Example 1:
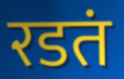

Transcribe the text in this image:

रडतं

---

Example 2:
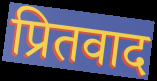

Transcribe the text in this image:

प्रितवाद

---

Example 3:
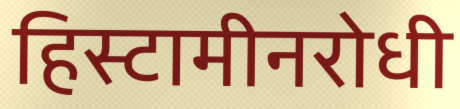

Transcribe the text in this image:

हिस्टामीनरोधी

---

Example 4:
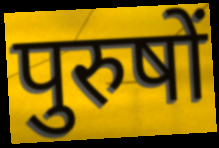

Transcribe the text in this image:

पुरुषों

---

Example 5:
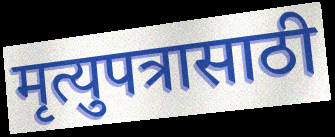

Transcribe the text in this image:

मृत्युपत्रासाठी